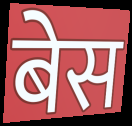
बेस